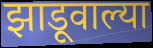
झाडूवाल्या